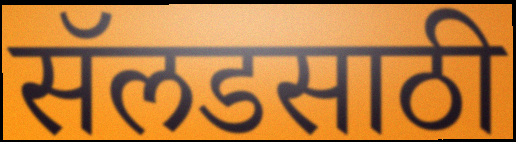
सॅलडसाठी